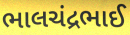
ભાલચંદ્રભાઈ